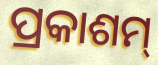
ପ୍ରକାଶମ୍